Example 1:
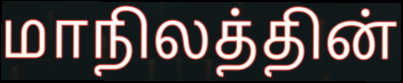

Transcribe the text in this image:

மாநிலத்தின்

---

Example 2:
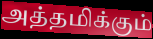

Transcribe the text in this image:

அத்தமிக்கும்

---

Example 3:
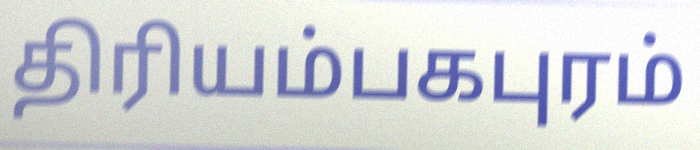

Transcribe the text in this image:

திரியம்பகபுரம்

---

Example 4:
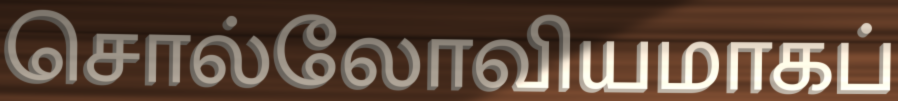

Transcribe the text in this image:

சொல்லோவியமாகப்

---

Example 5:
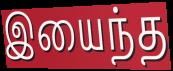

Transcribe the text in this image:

இயைந்த